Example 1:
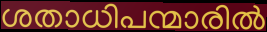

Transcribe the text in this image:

ശതാധിപന്മാരിൽ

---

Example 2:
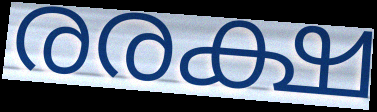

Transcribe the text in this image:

രരക്ഷ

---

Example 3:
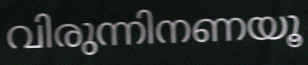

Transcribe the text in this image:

വിരുന്നിനണയൂ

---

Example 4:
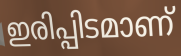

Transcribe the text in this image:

ഇരിപ്പിടമാണ്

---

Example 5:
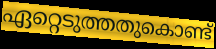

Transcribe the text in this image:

ഏറ്റെടുത്തതുകൊണ്ട്